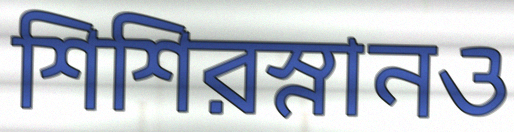
শিশিরস্নানও